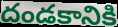
దండకానికి